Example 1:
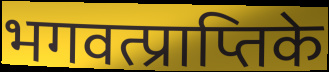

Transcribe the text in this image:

भगवत्प्राप्तिके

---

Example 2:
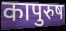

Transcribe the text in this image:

कापुरुष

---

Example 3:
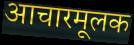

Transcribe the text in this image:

आचारमूलक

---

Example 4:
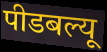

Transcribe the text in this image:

पीडबल्यू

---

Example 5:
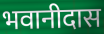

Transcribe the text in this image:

भवानीदास